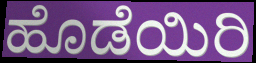
ಹೊಡೆಯಿರಿ